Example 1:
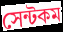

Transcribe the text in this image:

সেন্টকম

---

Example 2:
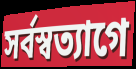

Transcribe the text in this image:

সর্বস্বত্যাগে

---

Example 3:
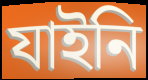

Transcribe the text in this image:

যাইনি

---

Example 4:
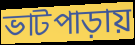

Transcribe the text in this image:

ভাটপাড়ায়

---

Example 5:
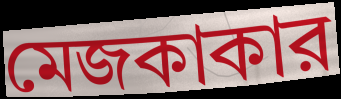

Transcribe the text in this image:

মেজকাকার